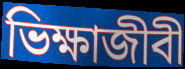
ভিক্ষাজীবী